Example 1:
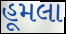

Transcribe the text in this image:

હૂમલા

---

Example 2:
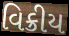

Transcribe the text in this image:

વિક્રીય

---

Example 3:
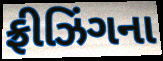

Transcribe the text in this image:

ફ્રીઝિંગના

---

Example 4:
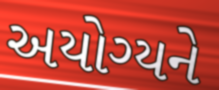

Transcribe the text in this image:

અયોગ્યને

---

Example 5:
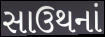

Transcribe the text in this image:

સાઉથનાં